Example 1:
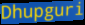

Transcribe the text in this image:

Dhupguri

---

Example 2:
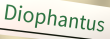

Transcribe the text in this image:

Diophantus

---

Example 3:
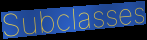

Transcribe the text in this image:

Subclasses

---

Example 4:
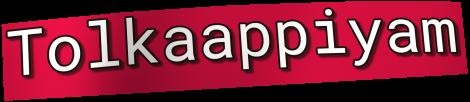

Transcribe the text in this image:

Tolkaappiyam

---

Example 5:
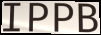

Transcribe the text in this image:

IPPB